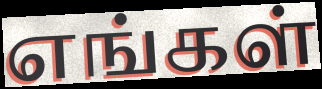
எங்கள்